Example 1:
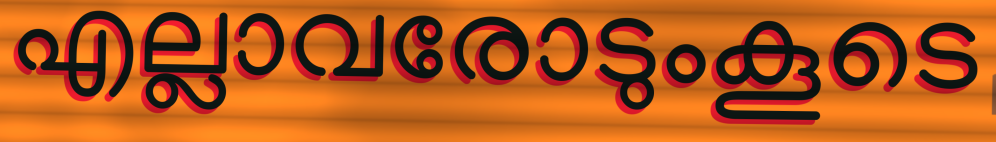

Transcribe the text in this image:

എല്ലാവരോടുംകൂടെ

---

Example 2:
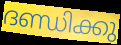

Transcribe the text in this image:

ദണ്ഡിക്കു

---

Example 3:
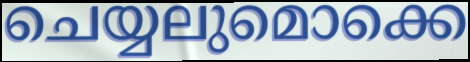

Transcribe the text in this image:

ചെയ്യലുമൊക്കെ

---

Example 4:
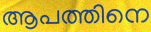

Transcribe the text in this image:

ആപത്തിനെ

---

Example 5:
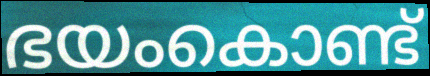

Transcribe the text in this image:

ഭയംകൊണ്ട്